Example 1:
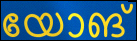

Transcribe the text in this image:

യോങ്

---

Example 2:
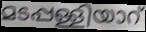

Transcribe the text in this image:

മടപ്പള്ളിയാറ്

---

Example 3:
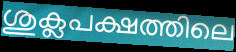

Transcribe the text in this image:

ശുക്ലപക്ഷത്തിലെ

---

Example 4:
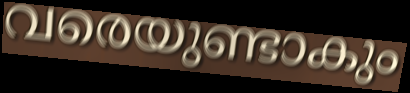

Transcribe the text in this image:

വരെയുണ്ടാകും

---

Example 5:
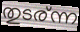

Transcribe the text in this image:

തുടര്ന്ന